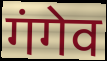
गंगेव